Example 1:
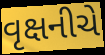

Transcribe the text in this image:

વૃક્ષનીચે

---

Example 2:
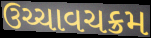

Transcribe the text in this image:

ઉચ્ચાવચક્રમ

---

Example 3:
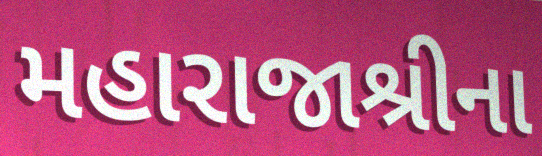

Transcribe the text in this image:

મહારાજાશ્રીના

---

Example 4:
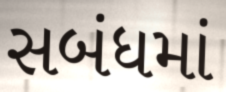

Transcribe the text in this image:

સબંધમાં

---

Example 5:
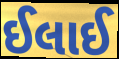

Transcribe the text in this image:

ઈલાઈ